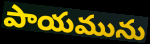
పాయమును